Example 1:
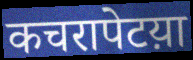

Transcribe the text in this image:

कचरापेटय़ा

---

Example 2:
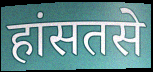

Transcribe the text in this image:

हांसतसे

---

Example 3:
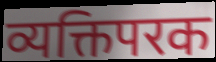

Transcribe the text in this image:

व्यक्तिपरक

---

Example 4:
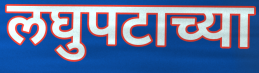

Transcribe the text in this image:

लघुपटाच्या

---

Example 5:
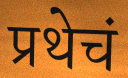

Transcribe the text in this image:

प्रथेचं